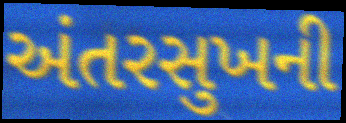
અંતરસુખની